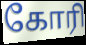
கோரி